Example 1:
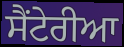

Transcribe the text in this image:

ਸੈਂਟੇਰੀਆ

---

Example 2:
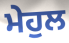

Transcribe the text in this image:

ਮੇਹੁਲ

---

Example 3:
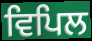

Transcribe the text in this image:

ਵਿਪਿਲ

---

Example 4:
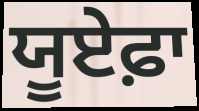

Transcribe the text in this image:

ਯੂਏਫ਼ਾ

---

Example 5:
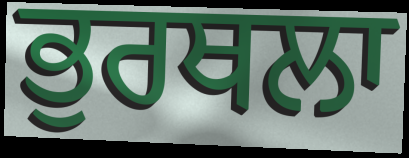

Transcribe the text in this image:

ਭੁਰਥਲਾ